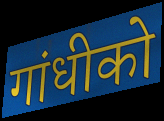
गांधीको